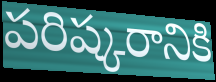
పరిష్కరానికి